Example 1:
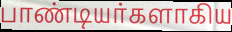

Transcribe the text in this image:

பாண்டியர்களாகிய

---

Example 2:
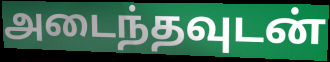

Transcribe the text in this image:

அடைந்தவுடன்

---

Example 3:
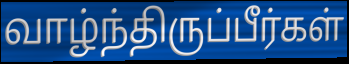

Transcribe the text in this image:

வாழ்ந்திருப்பீர்கள்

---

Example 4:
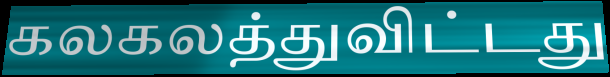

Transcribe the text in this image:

கலகலத்துவிட்டது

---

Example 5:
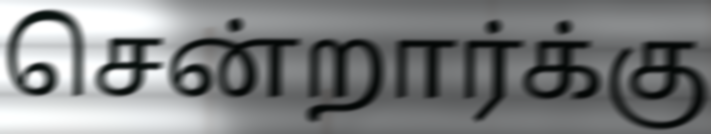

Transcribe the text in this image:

சென்றார்க்கு